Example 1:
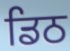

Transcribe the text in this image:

ਡਿਠ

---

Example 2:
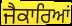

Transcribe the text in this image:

ਜੈਕਾਰਿਆਂ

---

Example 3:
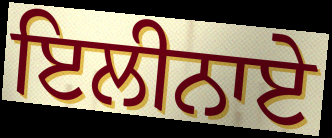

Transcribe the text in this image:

ਇਲੀਨਾਏ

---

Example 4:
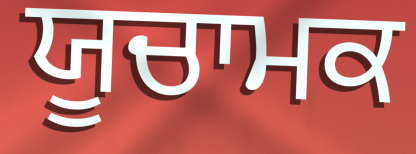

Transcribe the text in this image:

ਯੂਚਾਮਕ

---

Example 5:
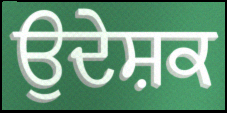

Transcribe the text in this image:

ਉਦੇਸ਼ਕ